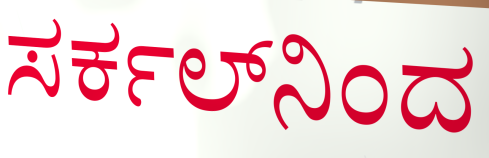
ಸರ್ಕಲ್‌ನಿಂದ